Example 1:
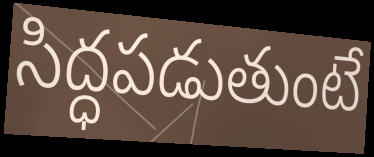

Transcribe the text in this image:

సిద్ధపడుతుంటే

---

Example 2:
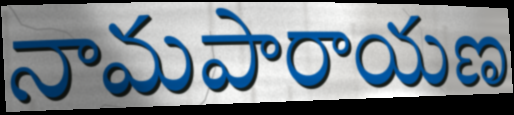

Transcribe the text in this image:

నామపారాయణ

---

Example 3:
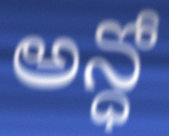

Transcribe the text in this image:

అన్ధో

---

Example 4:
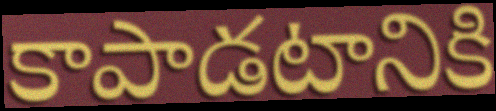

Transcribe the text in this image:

కాపాడటానికి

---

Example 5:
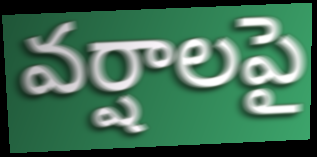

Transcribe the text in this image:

వర్షాలపై